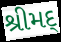
શ્રીમદ્‍